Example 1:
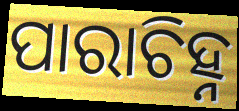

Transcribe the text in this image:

ପାରାଚିହ୍ନ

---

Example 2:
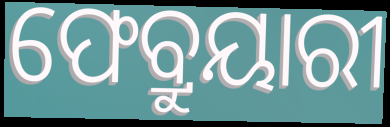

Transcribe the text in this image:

ଫେବ୍ରୁୟାରୀ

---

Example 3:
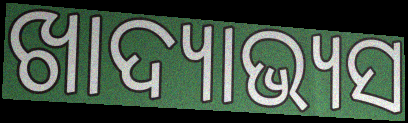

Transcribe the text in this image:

ଖାଦ୍ୟାଭ୍ୟସ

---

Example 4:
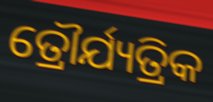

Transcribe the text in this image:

ତ୍ରୌର୍ଯ୍ୟତ୍ରିକ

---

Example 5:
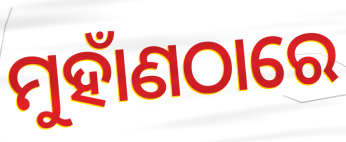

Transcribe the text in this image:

ମୁହାଁଣଠାରେ